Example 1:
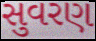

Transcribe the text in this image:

સુવરણ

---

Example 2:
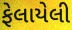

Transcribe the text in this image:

ફેલાયેલી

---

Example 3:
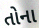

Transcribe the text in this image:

તોના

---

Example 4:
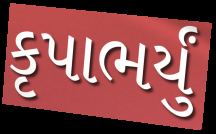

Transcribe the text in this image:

કૃપાભર્યું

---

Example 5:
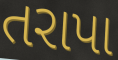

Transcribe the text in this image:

તરાપા